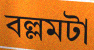
বল্লমটা